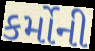
કર્મોની